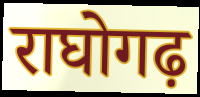
राघोगढ़